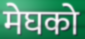
मेघको